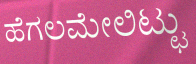
ಹೆಗಲಮೇಲಿಟ್ಟು